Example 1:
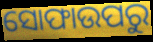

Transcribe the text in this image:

ସୋଫାଉପରୁ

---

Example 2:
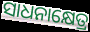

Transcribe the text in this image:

ସାଧନାକ୍ଷେତ୍ର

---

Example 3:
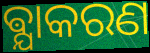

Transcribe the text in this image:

ଵ୍ଯାକରଣ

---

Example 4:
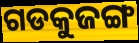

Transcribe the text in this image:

ଗଡକୁଜଙ୍ଗ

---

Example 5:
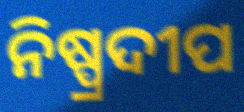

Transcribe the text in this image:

ନିଷ୍ପ୍ରଦୀପ